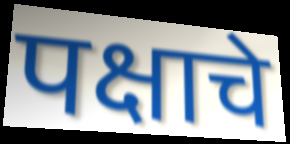
पक्षाचे